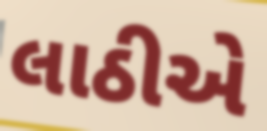
લાઠીએ